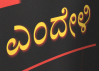
ಎಂದೇಳಿ